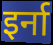
इर्ना